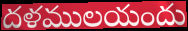
దళములయందు